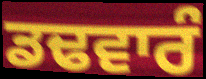
ਡਢਵਾਰੰ